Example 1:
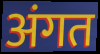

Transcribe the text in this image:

अंगत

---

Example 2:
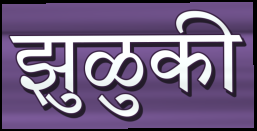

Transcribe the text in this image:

झुळुकी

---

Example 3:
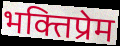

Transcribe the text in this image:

भक्तिप्रेम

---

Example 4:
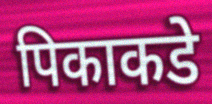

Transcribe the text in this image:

पिकाकडे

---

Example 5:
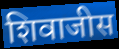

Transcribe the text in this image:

शिवाजीस